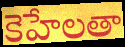
కెహేలతా